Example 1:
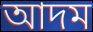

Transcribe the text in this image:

আদম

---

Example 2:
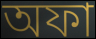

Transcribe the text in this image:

অফা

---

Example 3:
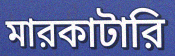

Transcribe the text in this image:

মারকাটারি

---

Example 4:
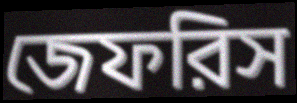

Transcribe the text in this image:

জেফরিস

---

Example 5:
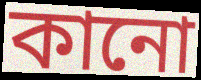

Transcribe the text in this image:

কানো